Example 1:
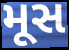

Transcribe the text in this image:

મૂસ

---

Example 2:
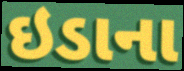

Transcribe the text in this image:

ઇડાના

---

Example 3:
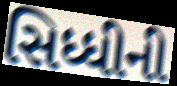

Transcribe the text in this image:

સિધ્ધીની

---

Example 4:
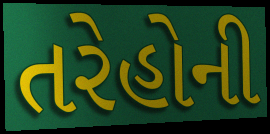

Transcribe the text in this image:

તરેહોની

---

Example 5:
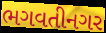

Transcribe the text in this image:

ભગવતીનગર